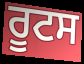
ਰੂਟਸ